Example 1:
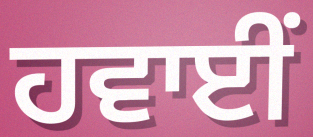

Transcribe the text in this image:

ਹਵਾਈਂ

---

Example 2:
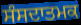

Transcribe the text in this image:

ਸੰਸਦਾਤਮਕ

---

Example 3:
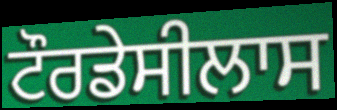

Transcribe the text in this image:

ਟੌਰਡੇਸੀਲਾਸ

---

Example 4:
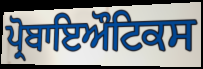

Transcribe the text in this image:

ਪ੍ਰੋਬਾਇਔਟਿਕਸ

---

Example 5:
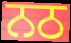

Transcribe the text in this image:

ਨਠ